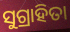
ସୁଗ୍ରାହିତା